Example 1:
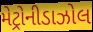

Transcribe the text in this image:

મેટ્રોનીડાઝોલ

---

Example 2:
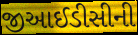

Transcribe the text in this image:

જીઆઈડીસીની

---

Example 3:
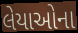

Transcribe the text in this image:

લેયાઓના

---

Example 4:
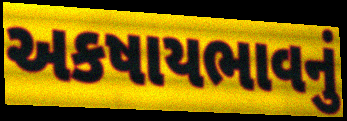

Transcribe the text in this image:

અકષાયભાવનું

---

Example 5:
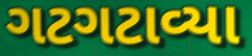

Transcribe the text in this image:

ગટગટાવ્યા